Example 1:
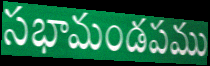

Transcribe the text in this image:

సభామండపము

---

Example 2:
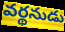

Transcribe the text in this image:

వర్థనుడు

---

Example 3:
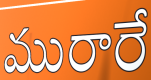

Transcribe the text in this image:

మురారే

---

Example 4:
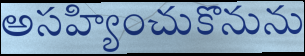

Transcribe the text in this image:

అసహ్యించుకొనును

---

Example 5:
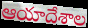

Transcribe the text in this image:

ఆయాదేశాల